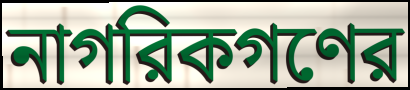
নাগরিকগণের